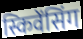
स्किवेंसिंग